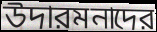
উদারমনাদের